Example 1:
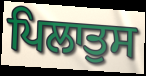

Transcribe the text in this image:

ਪਿਲਾਤੁਸ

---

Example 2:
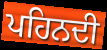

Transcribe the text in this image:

ਪਹਿਨਦੀ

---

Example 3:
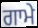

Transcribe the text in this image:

ਗਾਮੇ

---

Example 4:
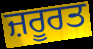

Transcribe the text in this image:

ਜ਼ਰੂਰਤ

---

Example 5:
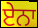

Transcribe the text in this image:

ਏਨਾ